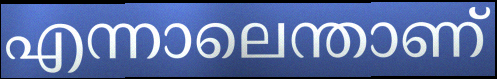
എന്നാലെന്താണ്